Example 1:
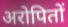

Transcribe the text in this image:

अरोपितों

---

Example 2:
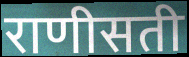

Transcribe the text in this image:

राणीसती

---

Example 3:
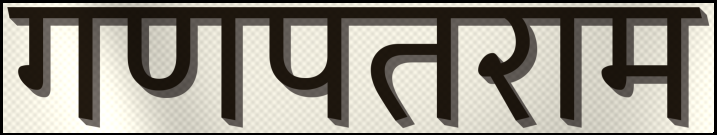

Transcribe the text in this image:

गणपतराम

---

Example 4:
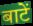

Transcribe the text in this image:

बाटें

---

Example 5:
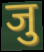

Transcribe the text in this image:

जु